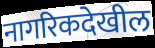
नागरिकदेखील